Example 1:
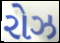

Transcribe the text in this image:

રોઝ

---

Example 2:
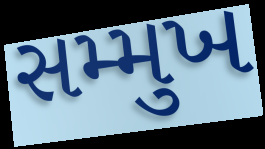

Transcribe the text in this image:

સમ્મુખ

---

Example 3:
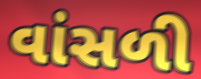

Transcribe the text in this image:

વાંસળી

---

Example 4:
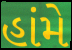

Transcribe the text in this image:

હાંમે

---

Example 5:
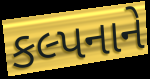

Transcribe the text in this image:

કલ્પનાને